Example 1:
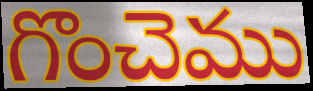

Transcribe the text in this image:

గొంచెము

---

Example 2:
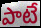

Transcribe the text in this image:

పాటే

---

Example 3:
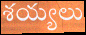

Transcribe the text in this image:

శయ్యలు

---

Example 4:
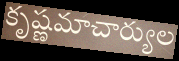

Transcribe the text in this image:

కృష్ణమాచార్యుల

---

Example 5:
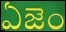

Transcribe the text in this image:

ఏజెం